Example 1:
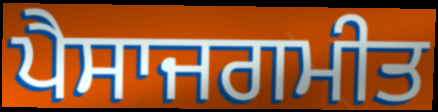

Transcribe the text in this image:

ਪੈਸਾਜਗਮੀਤ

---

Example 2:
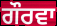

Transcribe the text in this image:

ਗੌਰਵਾ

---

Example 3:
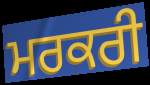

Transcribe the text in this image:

ਮਰਕਰੀ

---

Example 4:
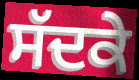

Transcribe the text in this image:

ਸੱਦਕੇ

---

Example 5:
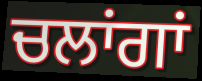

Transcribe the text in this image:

ਚਲਾਂਗਾਂ